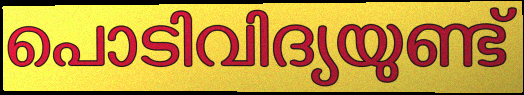
പൊടിവിദ്യയുണ്ട്